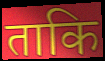
ताकि